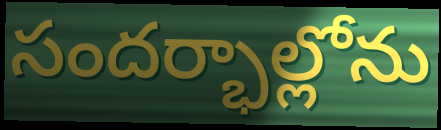
సందర్భాల్లోను